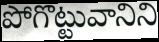
పోగొట్టువానిని